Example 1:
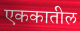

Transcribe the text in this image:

एककातील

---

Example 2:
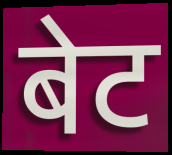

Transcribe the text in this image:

बेट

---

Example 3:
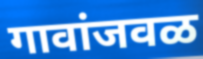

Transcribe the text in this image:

गावांजवळ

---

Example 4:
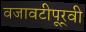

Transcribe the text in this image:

वजावटीपूर्वी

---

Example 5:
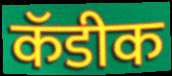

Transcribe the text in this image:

कॅडीक